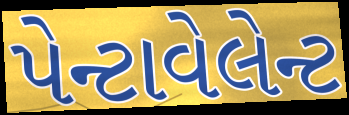
પેન્ટાવેલેન્ટ